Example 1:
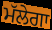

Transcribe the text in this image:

ਮੱਲੇਗਾ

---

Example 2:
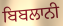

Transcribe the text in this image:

ਬਿਬਲਾਨੀ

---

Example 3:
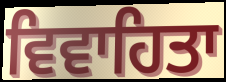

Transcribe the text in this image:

ਵਿਵਾਹਿਤਾ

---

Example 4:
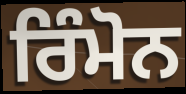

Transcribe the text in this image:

ਰਿੰਮੋਨ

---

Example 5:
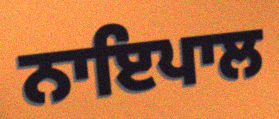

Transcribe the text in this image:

ਨਾਇਪਾਲ